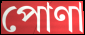
পোণা